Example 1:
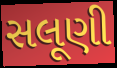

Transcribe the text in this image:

સલૂણી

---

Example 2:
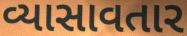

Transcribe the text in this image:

વ્યાસાવતાર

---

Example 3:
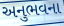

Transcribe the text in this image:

અનુભવના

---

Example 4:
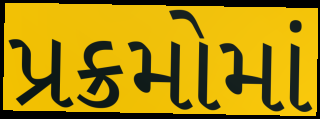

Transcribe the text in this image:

પ્રક્રમોમાં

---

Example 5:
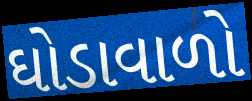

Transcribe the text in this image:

ઘોડાવાળો